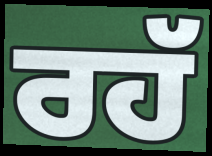
ਰਹੱ